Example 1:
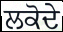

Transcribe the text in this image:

ਲਕੋਦੇ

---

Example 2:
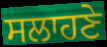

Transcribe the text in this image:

ਸਲਾਹਣੇ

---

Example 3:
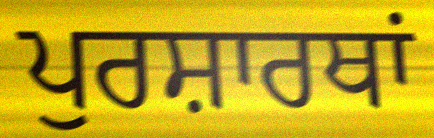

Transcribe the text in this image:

ਪੁਰਸ਼ਾਰਥਾਂ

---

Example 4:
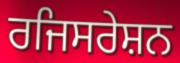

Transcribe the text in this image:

ਰਜਿਸਰੇਸ਼ਨ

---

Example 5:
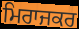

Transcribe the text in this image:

ਮਿਰਾਜਕਰ